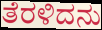
ತೆರಳಿದನು